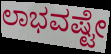
ಲಾಭವಷ್ಟೇ